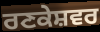
ਰਣਕੇਸ਼ਵਰ